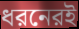
ধরনেরই